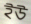
ইউ